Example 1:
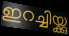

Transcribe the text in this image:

ഇറച്ചിയ്ക്കു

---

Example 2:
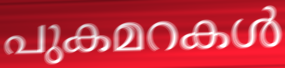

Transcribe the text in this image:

പുകമറകൾ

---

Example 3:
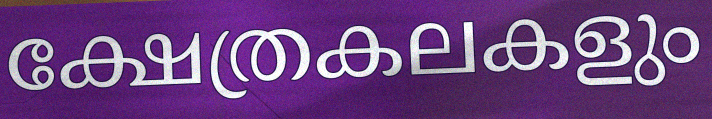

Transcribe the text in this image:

ക്ഷേത്രകലകളും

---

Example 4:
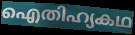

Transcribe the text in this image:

ഐതിഹ്യകഥ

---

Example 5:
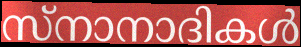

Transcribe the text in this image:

സ്നാനാദികൾ